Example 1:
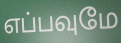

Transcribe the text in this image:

எப்பவுமே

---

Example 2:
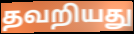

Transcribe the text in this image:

தவறியது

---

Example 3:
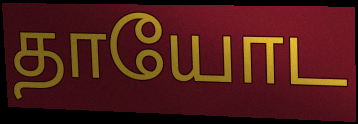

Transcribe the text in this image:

தாயோட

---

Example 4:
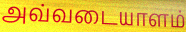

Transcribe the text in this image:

அவ்வடையாளம்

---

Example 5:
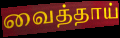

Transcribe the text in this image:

வைத்தாய்